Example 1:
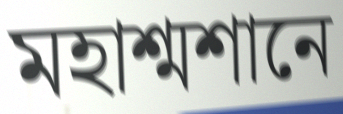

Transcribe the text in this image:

মহাশ্মশানে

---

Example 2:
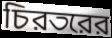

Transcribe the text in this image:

চিরতরের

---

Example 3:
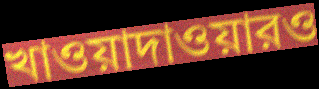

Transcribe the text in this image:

খাওয়াদাওয়ারও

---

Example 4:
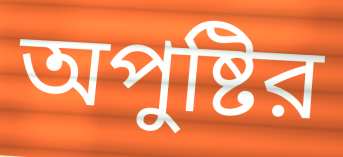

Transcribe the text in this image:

অপুষ্টির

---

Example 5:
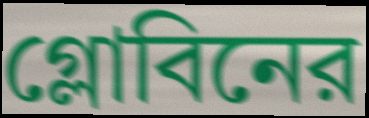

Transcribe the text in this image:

গ্লোবিনের